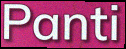
Panti